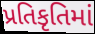
પ્રતિકૃતિમાં